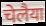
चेलैया